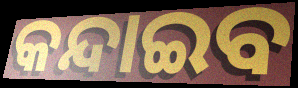
କନ୍ଦାଇବ